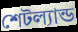
শেটল্যান্ড